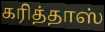
கரித்தாஸ்